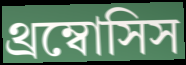
থ্রম্বোসিস